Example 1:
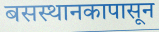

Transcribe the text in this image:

बसस्थानकापासून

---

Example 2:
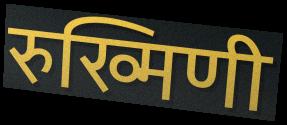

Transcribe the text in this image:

रुख्मिणी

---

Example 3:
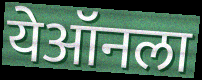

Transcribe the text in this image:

येऑनला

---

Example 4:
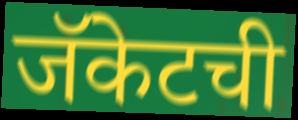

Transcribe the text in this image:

जॅकेटची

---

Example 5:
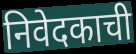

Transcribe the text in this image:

निवेदकाची